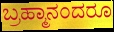
ಬ್ರಹ್ಮಾನಂದರೂ